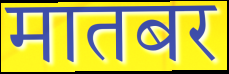
मातबर